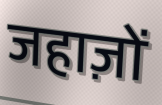
जहाज़ों